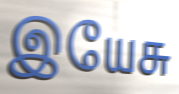
இயேசு